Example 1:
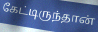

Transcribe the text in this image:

கேட்டிருந்தான்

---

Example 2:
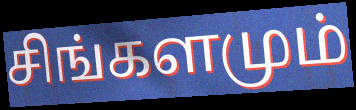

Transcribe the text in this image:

சிங்களமும்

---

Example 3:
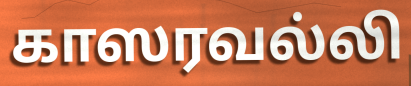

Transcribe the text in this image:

காஸரவல்லி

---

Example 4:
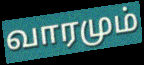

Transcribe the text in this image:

வாரமும்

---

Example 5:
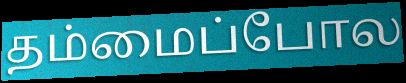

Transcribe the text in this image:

தம்மைப்போல